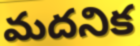
మదనిక